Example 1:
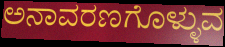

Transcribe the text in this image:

ಅನಾವರಣಗೊಳ್ಳುವ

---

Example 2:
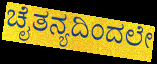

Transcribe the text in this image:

ಚೈತನ್ಯದಿಂದಲೇ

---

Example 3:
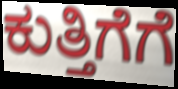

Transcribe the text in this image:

ಕುತ್ತಿಗೆಗೆ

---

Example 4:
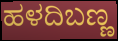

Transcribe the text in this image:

ಹಳದಿಬಣ್ಣ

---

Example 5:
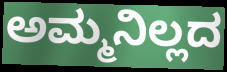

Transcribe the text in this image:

ಅಮ್ಮನಿಲ್ಲದ